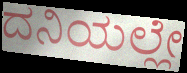
ದನಿಯಲ್ಲೇ